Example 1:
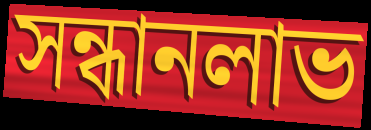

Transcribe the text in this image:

সন্ধানলাভ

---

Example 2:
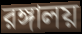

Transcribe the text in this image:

রঙ্গালয়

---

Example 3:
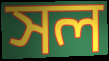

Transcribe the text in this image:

সল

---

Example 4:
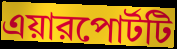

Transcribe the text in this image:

এয়ারপোর্টটি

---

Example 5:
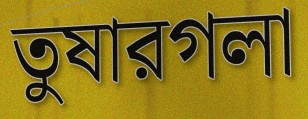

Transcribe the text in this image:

তুষারগলা